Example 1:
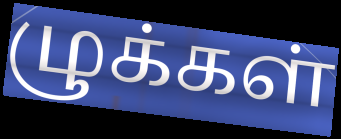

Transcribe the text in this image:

ழுக்கள்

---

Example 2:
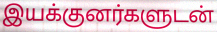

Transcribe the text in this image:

இயக்குனர்களுடன்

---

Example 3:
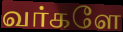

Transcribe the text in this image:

வர்களே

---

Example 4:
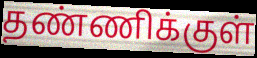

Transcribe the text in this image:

தண்ணிக்குள்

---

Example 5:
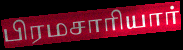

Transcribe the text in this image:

பிரமசாரியார்